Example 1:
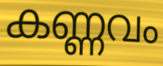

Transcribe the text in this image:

കണ്ണവം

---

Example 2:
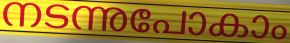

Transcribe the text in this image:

നടന്നുപോകാം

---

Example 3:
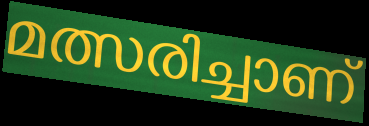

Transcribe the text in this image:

മത്സരിച്ചാണ്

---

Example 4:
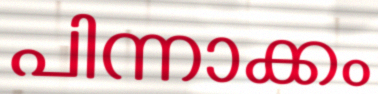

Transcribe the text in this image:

പിന്നാക്കം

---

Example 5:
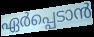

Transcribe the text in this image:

ഏർപ്പെടാൻ